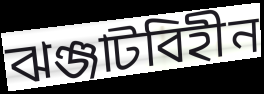
ঝঞ্জাটবিহীন